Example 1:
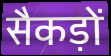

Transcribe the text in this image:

सैकड़ों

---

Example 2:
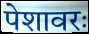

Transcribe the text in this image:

पेशावरः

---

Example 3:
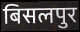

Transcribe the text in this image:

बिसलपुर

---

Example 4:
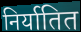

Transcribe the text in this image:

निर्यातित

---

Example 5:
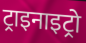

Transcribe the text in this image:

ट्राइनाइट्रो